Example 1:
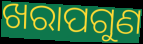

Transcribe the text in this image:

ଖରାପଗୁଣ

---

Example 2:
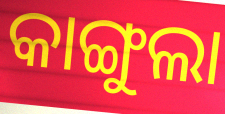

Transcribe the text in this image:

କାଙ୍ଗୁଲା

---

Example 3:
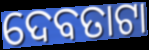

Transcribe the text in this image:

ଦେବତାଟା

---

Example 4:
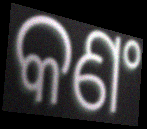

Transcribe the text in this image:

କଣଂ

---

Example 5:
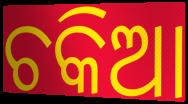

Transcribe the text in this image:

ଚକିଆ